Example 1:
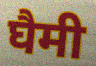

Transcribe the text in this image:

घैमी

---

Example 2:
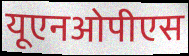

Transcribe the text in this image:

यूएनओपीएस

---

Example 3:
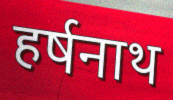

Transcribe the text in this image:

हर्षनाथ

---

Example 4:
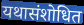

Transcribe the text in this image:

यथासंशोधित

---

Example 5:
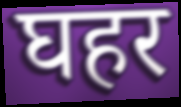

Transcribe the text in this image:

घहर